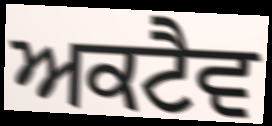
ਅਕਟੈਵ